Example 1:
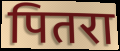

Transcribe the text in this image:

पितरा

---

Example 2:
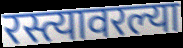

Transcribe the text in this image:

रस्त्यावरल्या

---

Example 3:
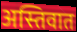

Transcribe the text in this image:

अस्तिवात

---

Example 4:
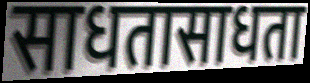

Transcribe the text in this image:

साधतासाधता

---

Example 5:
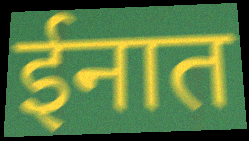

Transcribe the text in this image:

ईनात